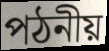
পঠনীয়